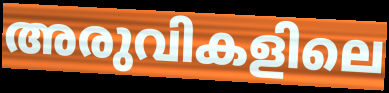
അരുവികളിലെ